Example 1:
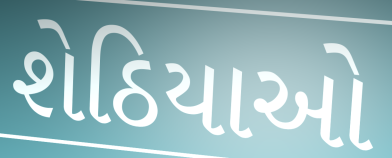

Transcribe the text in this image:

શેઠિયાઓ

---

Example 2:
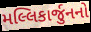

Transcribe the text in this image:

મલ્લિકાર્જુનનો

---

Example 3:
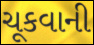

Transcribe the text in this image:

ચૂકવાની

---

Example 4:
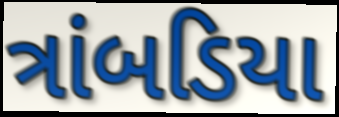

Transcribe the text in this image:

ત્રાંબડિયા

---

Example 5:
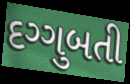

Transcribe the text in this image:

દગ્ગુબતી